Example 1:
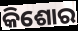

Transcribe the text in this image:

କିଶୋର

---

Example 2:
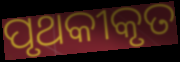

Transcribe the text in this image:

ପୃଥକୀକୃତ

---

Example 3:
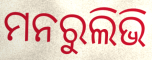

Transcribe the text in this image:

ମନରୁଲିଭି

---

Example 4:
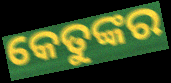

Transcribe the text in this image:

କେତୁଙ୍କର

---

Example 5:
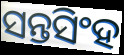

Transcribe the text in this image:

ସନ୍ତସିଂହ